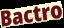
Bactro